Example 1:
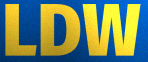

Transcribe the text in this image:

LDW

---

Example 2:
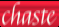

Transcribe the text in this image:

chaste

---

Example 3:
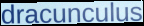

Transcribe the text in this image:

dracunculus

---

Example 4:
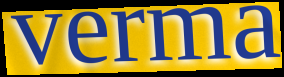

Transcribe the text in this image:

verma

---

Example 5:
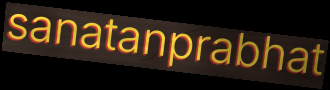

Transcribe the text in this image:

sanatanprabhat